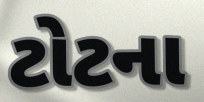
ટોટના